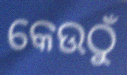
କେଉଠୁଁ